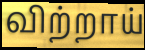
விற்றாய்